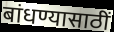
बांधण्यासाठीं